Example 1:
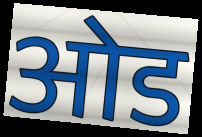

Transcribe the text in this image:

ओड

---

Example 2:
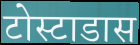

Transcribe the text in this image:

टोस्टाडास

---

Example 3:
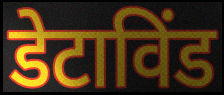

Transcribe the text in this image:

डेटाविंड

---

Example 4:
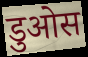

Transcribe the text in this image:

डुओस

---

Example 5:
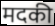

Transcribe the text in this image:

मदकी